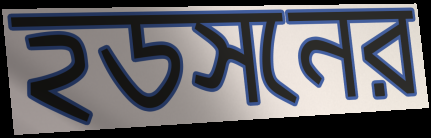
হডসনের